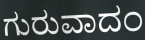
ಗುರುವಾದಂ